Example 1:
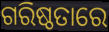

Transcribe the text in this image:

ଗରିଷ୍ଠତାରେ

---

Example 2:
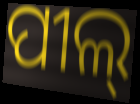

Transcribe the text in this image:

ପୀଲ୍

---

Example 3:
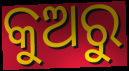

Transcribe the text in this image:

କୁଅରୁ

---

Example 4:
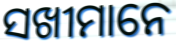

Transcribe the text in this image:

ସଖୀମାନେ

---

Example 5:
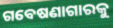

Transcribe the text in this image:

ଗବେଷଣାଗାରକୁ